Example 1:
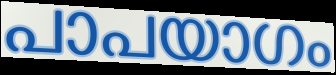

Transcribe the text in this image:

പാപയാഗം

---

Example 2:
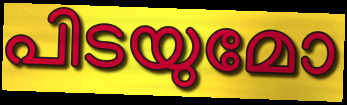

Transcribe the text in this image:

പിടയുമോ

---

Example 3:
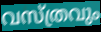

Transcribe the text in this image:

വസ്ത്രവും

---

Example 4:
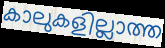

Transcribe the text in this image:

കാലുകളില്ലാത്ത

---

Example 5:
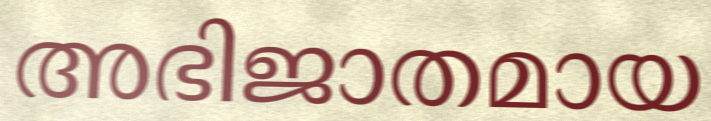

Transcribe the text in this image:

അഭിജാതമായ